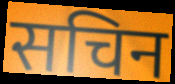
सचिन